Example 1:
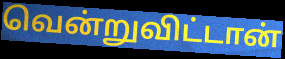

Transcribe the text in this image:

வென்றுவிட்டான்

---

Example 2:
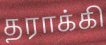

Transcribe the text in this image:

தராக்கி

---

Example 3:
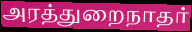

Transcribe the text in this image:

அரத்துறைநாதர்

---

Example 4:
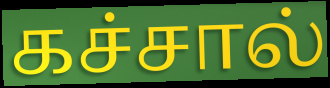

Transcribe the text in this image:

கச்சால்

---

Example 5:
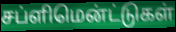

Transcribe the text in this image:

சப்ளிமென்ட்டுகள்